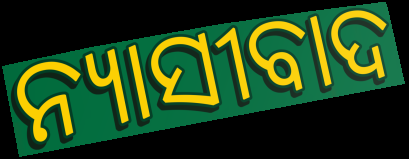
ନ୍ୟାସୀବାଦ